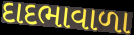
દાદભાવાળા